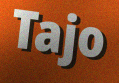
Tajo